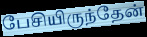
பேசியிருந்தேன்